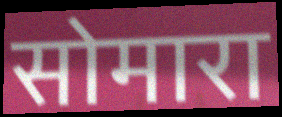
सोमारा